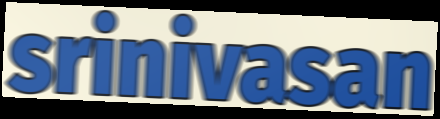
srinivasan